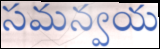
సమన్వయ